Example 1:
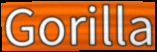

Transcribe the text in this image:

Gorilla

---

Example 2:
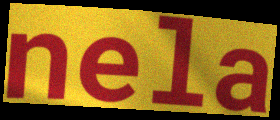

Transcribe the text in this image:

nela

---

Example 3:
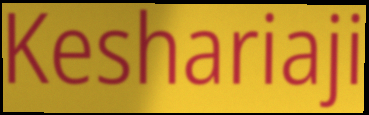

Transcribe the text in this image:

Keshariaji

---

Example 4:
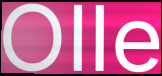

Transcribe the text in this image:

Olle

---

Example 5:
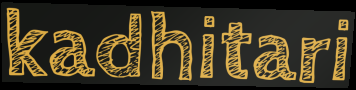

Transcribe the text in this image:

kadhitari